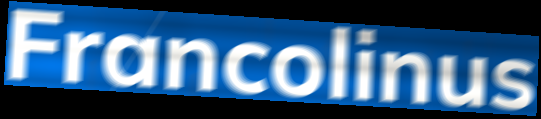
Francolinus